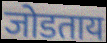
जोडताय